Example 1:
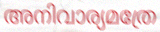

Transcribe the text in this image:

അനിവാര്യമത്രേ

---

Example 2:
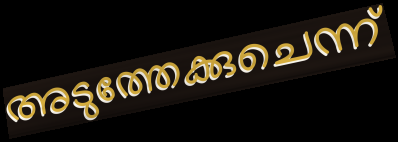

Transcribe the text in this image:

അടുത്തേക്കുചെന്ന്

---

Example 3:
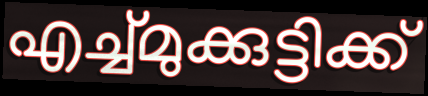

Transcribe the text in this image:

എച്ച്മുക്കുട്ടിക്ക്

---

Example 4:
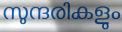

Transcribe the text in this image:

സുന്ദരികളും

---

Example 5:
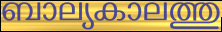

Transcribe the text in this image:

ബാല്യകാലത്തു